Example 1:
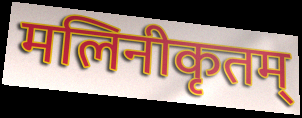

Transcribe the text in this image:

मलिनीकृतम्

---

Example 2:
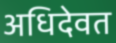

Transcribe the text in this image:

अधिदेवत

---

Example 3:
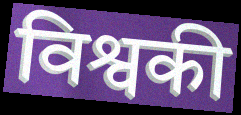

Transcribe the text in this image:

विश्वकी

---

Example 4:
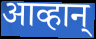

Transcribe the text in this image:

आव्हान्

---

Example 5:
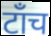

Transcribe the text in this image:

टाँच